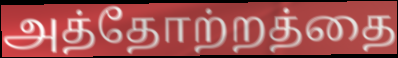
அத்தோற்றத்தை